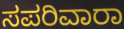
ಸಪರಿವಾರಾ